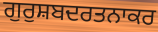
ਗੁਰੁਸ਼ਬਦਰਤਨਾਕਰ